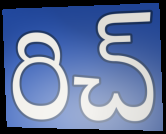
రిచ్